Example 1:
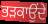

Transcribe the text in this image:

ਭੜਕਾਉਂਦੇ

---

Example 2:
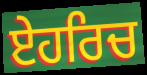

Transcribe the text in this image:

ਏਹਰਿਚ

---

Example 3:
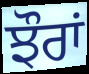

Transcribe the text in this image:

ਝੌਰਾਂ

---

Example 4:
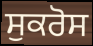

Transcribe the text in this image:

ਸੁਕਰੋਸ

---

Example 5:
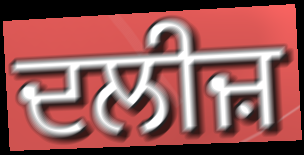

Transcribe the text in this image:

ਦਲੀਜ਼